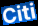
Citi